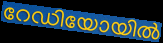
റേഡിയോയിൽ